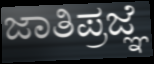
ಜಾತಿಪ್ರಜ್ಞೆ